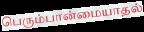
பெரும்பான்மையாதல்